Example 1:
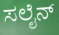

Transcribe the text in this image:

ಸಲೈನ್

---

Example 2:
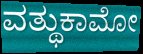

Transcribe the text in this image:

ವತ್ಥುಕಾಮೋ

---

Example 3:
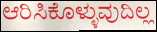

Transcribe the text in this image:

ಆರಿಸಿಕೊಳ್ಳುವುದಿಲ್ಲ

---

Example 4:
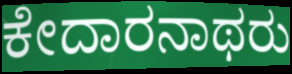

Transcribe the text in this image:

ಕೇದಾರನಾಥರು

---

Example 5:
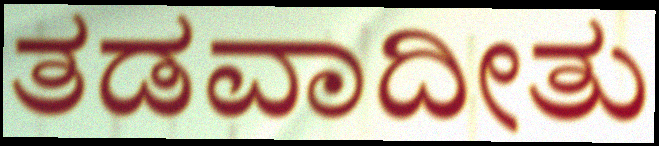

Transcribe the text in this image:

ತಡವಾದೀತು